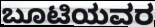
ಬೂಟಿಯವರ